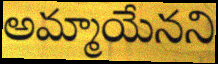
అమ్మాయేనని